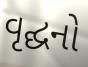
વૃદ્ઘનો